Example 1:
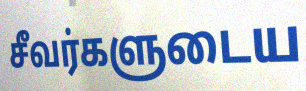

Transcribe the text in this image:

சீவர்களுடைய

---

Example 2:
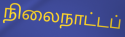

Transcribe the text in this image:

நிலைநாட்டப்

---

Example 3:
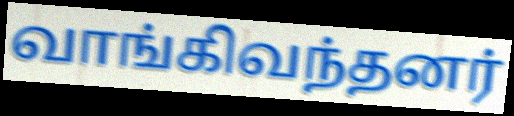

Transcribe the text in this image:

வாங்கிவந்தனர்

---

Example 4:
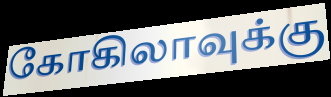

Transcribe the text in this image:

கோகிலாவுக்கு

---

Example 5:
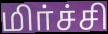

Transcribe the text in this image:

மிர்ச்சி